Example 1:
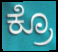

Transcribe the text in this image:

ಕ್ರೊ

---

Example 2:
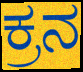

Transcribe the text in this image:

ಕ್ರನ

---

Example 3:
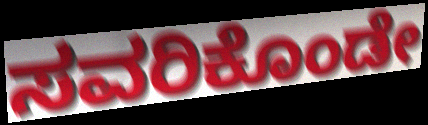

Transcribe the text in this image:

ಸವರಿಕೊಂಡೇ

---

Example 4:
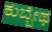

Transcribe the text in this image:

ಕುಬ್ಬೇಥ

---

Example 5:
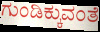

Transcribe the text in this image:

ಗುಂಡಿಕ್ಕುವಂತೆ